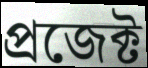
প্ৰজেক্ট